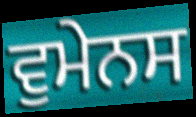
ਵੁਮੇਨਸ